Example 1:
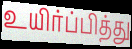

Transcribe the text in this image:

உயிர்ப்பித்து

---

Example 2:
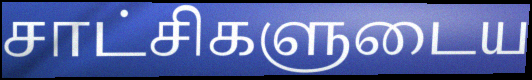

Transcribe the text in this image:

சாட்சிகளுடைய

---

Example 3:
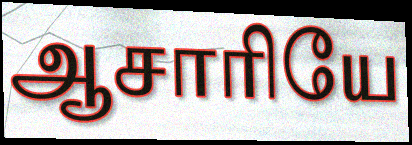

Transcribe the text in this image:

ஆசாரியே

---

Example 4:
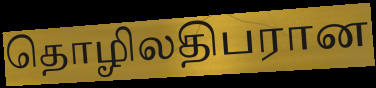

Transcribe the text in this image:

தொழிலதிபரான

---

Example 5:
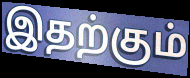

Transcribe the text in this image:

இதற்கும்